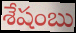
శేషంబు